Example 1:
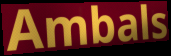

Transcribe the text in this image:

Ambals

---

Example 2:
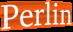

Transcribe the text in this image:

Perlin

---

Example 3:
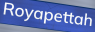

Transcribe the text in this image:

Royapettah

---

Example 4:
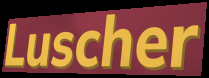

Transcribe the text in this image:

Luscher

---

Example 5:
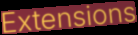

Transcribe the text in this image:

Extensions